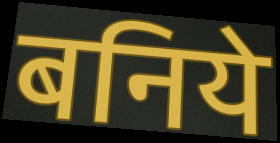
बनिये